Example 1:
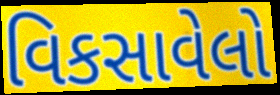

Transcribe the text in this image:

વિકસાવેલો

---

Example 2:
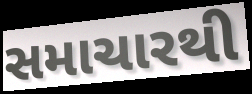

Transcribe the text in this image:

સમાચારથી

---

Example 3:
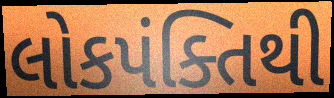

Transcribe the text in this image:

લોકપંક્તિથી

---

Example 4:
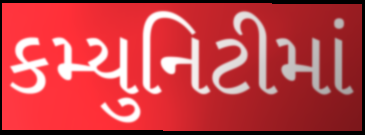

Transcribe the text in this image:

કમ્યુનિટીમાં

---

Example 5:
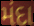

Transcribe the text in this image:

મંદા